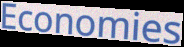
Economies